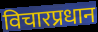
विचारप्रधान